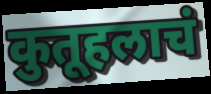
कुतूहलाचं